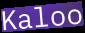
Kaloo